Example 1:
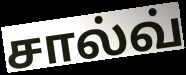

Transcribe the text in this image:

சால்வ்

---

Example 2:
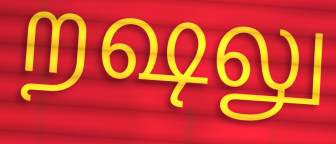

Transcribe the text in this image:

றஷலு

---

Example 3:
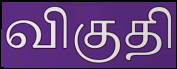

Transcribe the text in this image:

விகுதி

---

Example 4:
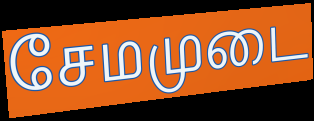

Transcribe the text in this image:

சேமமுடை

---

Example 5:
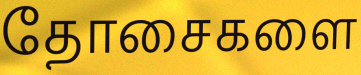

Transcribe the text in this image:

தோசைகளை